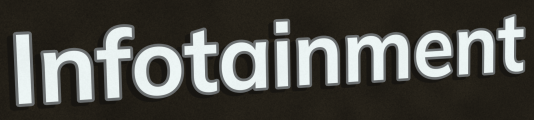
Infotainment